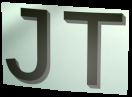
JT